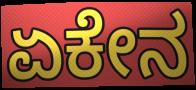
ಏಕೇನ